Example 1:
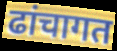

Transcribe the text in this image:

ढांचागत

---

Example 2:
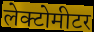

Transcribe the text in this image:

लेक्टोमीटर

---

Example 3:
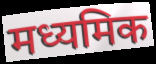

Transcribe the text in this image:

मध्यमिक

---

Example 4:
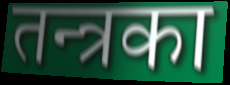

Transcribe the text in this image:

तन्त्रका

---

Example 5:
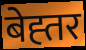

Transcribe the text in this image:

बेह्तर